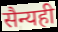
सैन्यही